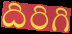
దిరిగి